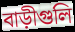
বাড়ীগুলি